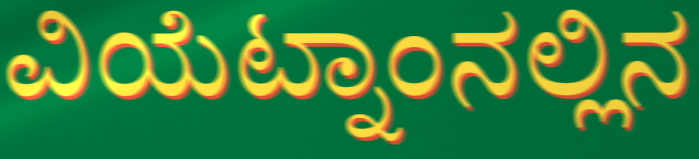
ವಿಯೆಟ್ನಾಂನಲ್ಲಿನ